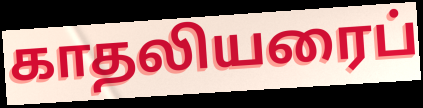
காதலியரைப்